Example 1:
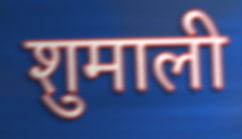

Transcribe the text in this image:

शुमाली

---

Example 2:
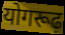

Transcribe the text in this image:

योगरूढ़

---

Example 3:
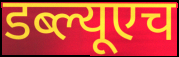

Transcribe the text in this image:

डब्ल्यूएच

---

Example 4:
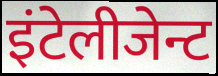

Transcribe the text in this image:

इंटेलीजेन्ट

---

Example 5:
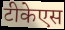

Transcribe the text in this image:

टीकेएस